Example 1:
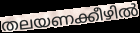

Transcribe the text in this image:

തലയണക്കീഴിൽ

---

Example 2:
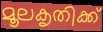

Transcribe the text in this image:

മൂലകൃതിക്ക്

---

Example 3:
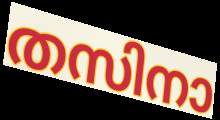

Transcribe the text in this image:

തസിനാ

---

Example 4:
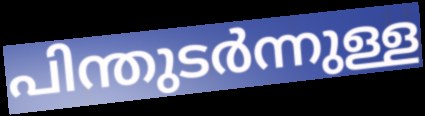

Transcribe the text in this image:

പിന്തുടർന്നുള്ള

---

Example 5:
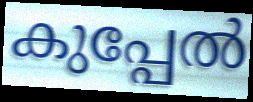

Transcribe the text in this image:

കുപ്പേൽ